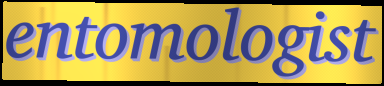
entomologist